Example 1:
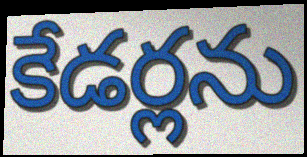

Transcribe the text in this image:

కేడర్లను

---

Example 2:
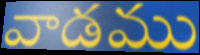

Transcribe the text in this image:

వాడము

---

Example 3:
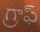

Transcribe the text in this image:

గ్రాఫ్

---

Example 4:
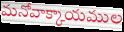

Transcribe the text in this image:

మనోవాక్కాయముల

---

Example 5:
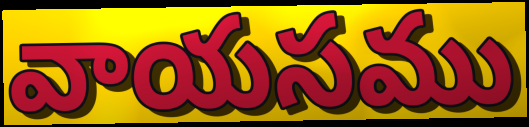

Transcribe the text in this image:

వాయసము